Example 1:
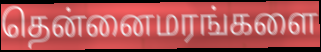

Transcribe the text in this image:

தென்னைமரங்களை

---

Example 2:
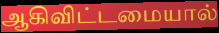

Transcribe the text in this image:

ஆகிவிட்டமையால்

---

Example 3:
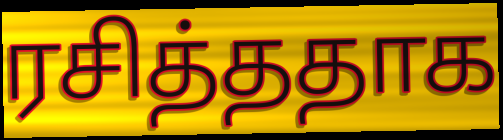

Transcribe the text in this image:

ரசித்ததாக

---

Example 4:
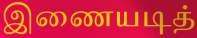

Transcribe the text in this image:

இணையடித்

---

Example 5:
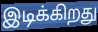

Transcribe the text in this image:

இடிக்கிறது